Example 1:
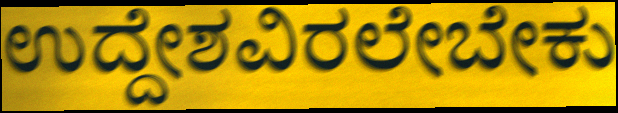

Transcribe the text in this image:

ಉದ್ದೇಶವಿರಲೇಬೇಕು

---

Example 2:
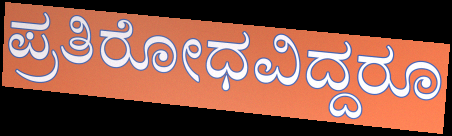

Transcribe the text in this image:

ಪ್ರತಿರೋಧವಿದ್ದರೂ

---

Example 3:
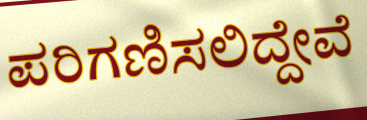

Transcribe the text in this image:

ಪರಿಗಣಿಸಲಿದ್ದೇವೆ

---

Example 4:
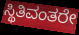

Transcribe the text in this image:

ಸ್ಥಿತಿವಂತರೇ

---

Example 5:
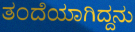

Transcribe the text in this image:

ತಂದೆಯಾಗಿದ್ದನು